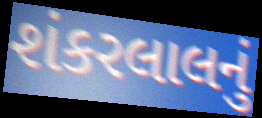
શંકરલાલનું